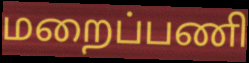
மறைப்பணி